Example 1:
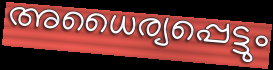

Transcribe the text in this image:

അധൈര്യപ്പെട്ടും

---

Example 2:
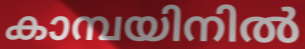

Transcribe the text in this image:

കാമ്പയിനിൽ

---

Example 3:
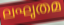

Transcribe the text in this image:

ലഘുതമ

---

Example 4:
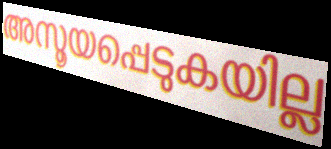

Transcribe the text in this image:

അസൂയപ്പെടുകയില്ല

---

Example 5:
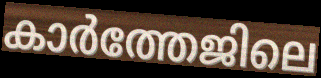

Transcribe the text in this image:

കാർത്തേജിലെ